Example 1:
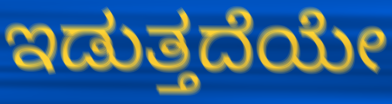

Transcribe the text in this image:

ಇಡುತ್ತದೆಯೇ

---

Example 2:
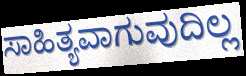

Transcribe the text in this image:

ಸಾಹಿತ್ಯವಾಗುವುದಿಲ್ಲ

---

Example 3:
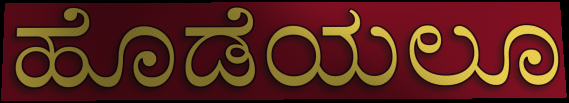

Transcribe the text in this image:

ಹೊಡೆಯಲೂ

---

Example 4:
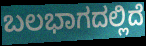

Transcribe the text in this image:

ಬಲಭಾಗದಲ್ಲಿದೆ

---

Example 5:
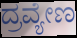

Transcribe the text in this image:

ದ್ರವ್ಯೇಣ